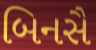
બિનસૈ